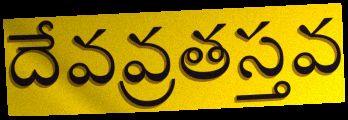
దేవవ్రతస్తవ